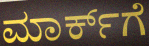
ಮಾರ್ಕ್‌ಗೆ